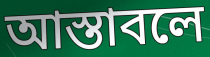
আস্তাবলে